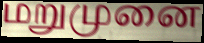
மறுமுனை